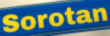
Sorotan